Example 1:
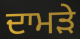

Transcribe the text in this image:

ਦਾਮੜੇ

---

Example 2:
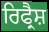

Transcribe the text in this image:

ਰਿਫ੍ਰੈਸ਼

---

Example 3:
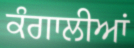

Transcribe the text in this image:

ਕੰਗਾਲੀਆਂ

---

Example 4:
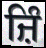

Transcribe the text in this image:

ਜ਼ਿੰ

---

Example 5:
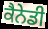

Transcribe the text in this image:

ਕੈਨੇਡੀ